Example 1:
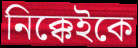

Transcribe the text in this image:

নিক্কেইকে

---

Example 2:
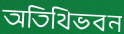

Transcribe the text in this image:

অতিথিভবন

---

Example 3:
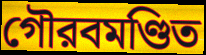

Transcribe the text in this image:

গৌরবমণ্ডিত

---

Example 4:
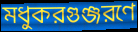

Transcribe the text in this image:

মধুকরগুঞ্জরণে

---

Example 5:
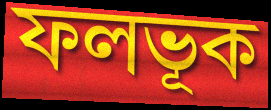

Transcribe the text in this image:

ফলভূক